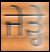
ਜੇੜ੍ਹੇ